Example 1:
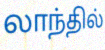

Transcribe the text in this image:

லாந்தில்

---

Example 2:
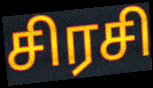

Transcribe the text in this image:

சிரசி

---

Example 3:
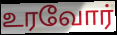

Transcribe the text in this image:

உரவோர்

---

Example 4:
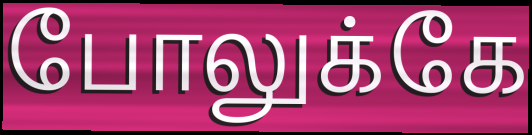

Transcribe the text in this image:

போலுக்கே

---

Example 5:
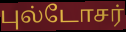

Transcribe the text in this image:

புல்டோசர்